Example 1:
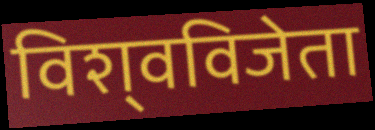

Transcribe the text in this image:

विश्वविजेता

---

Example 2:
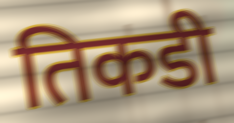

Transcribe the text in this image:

तिकडी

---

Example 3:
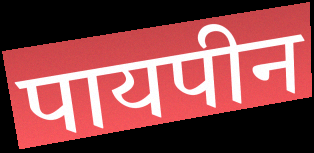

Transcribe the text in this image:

पायपीन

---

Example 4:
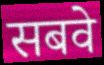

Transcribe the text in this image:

सबवे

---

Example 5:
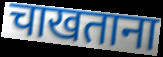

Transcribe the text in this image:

चाखताना